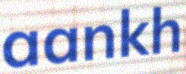
aankh